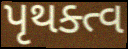
પૃથક્ત્વ